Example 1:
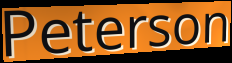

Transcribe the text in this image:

Peterson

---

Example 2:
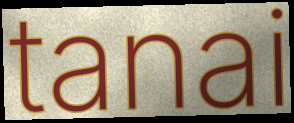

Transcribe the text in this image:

tanai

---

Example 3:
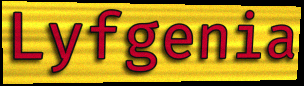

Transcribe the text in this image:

Lyfgenia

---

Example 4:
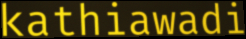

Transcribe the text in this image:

kathiawadi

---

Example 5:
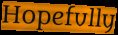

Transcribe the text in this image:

Hopefully